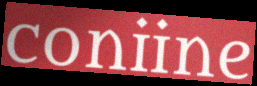
coniine